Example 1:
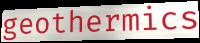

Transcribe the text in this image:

geothermics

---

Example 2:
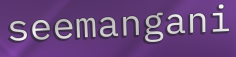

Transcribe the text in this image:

seemangani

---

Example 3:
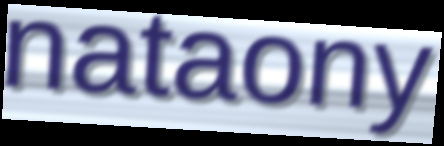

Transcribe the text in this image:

nataony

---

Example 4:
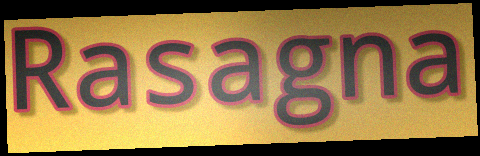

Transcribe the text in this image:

Rasagna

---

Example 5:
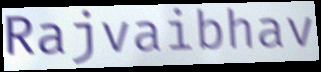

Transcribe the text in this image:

Rajvaibhav